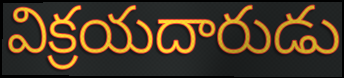
విక్రయదారుడు